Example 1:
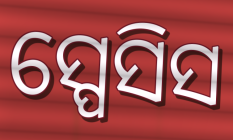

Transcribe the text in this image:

ସ୍ପେସିସ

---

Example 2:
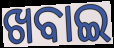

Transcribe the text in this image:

ଖବାଇ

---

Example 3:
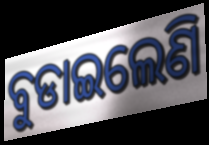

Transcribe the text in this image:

ବୁଡାଇଲେଣି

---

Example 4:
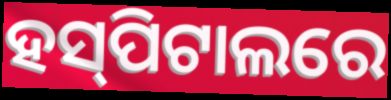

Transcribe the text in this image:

ହସ୍‍ପିଟାଲରେ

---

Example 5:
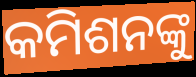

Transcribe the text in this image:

କମିଶନଙ୍କୁ